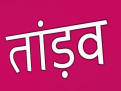
तांड़व